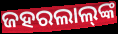
ଜହରଲାଲ୍‌ଙ୍କ